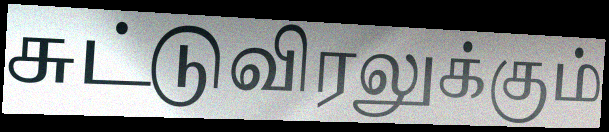
சுட்டுவிரலுக்கும்